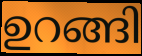
ഉറങ്ങി